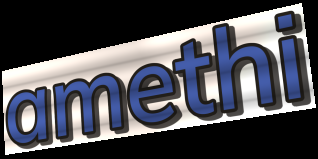
amethi